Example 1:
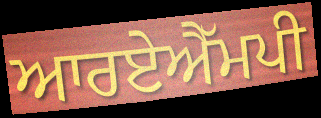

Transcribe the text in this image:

ਆਰਏਐੱਮਪੀ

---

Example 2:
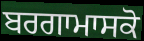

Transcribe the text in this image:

ਬਰਗਾਮਾਸਕੋ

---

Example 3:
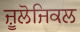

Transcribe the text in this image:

ਜ਼ੂਲੋਜਿਕਲ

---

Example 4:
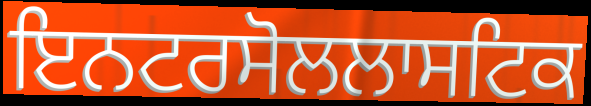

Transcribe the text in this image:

ਇਨਟਰਸੋਲਲਾਸਟਿਕ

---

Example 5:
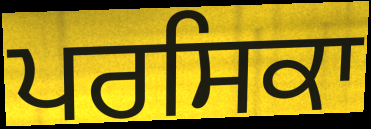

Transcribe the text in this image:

ਪਰਸਿਕਾ